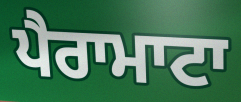
ਪੈਰਾਮਾਟਾ